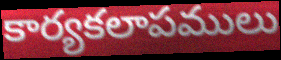
కార్యకలాపములు